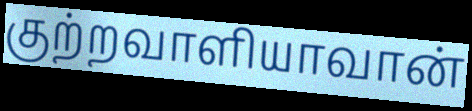
குற்றவாளியாவான்